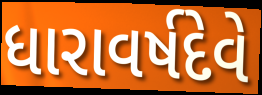
ધારાવર્ષદેવે